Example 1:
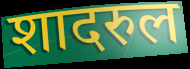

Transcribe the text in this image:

शादरुल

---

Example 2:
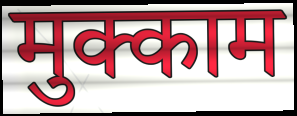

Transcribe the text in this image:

मुक्काम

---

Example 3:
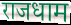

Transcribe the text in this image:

राजधाम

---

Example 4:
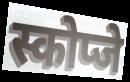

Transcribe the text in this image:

स्कोप्जे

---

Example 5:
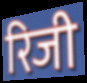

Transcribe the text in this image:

रिजी